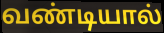
வண்டியால்